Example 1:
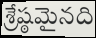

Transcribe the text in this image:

శ్రేష్ఠమైనది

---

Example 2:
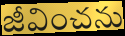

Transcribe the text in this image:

జీవించను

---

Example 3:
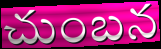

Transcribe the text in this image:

చుంబన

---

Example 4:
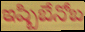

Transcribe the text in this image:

ఇష్బిబేనోబ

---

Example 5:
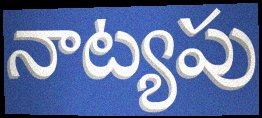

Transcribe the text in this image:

నాట్యపు